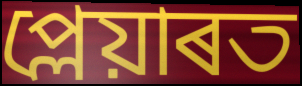
প্লেয়াৰত